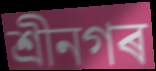
শ্ৰীনগৰ